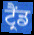
ਟ੍ਰੈਂਡ